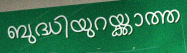
ബുദ്ധിയുറയ്ക്കാത്ത